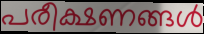
പരീക്ഷണങ്ങൾ